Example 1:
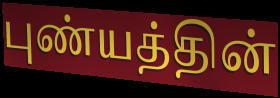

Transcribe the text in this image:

புண்யத்தின்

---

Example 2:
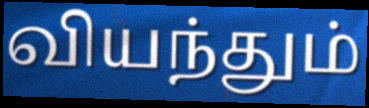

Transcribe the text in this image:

வியந்தும்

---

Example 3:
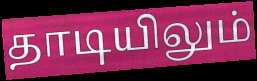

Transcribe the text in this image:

தாடியிலும்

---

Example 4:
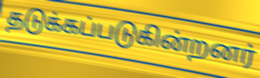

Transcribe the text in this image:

தடுக்கப்படுகின்றனர்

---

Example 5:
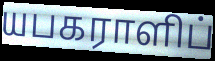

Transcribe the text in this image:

யபகராளிப்